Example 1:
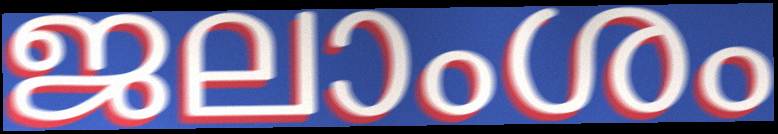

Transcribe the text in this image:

ജലാംശം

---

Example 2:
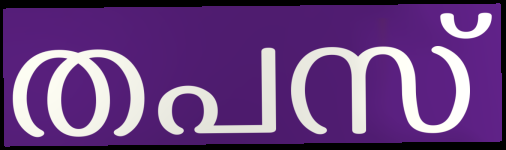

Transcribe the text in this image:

തപസ്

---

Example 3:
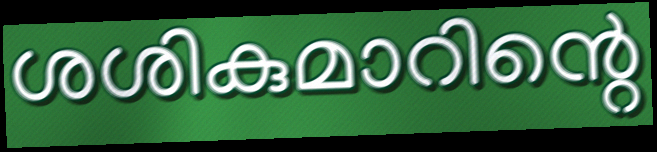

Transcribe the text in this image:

ശശികുമാറിന്റെ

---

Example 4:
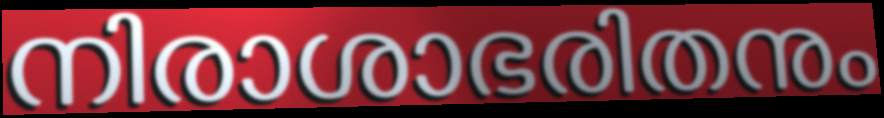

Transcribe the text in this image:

നിരാശാഭരിതനും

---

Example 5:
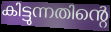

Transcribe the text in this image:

കിട്ടുന്നതിന്റെ